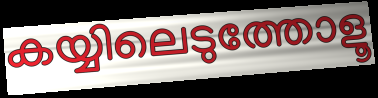
കയ്യിലെടുത്തോളൂ